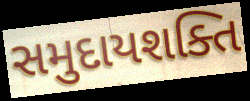
સમુદાયશક્તિ